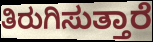
ತಿರುಗಿಸುತ್ತಾರೆ